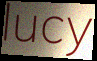
lucy